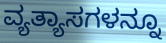
ವ್ಯತ್ಯಾಸಗಳನ್ನೂ